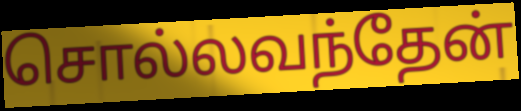
சொல்லவந்தேன்